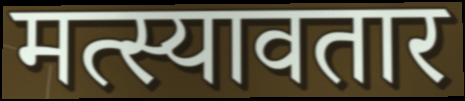
मत्स्यावतार